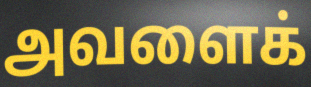
அவளைக்